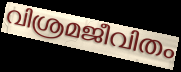
വിശ്രമജീവിതം